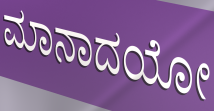
ಮಾನಾದಯೋ